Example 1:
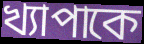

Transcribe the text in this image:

খ্যাপাকে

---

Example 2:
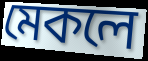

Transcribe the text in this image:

মেকলে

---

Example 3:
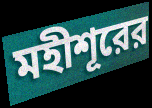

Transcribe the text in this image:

মহীশূরের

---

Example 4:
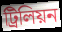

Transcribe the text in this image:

ট্রিলিয়ন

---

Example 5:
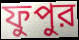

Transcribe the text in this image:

ফুপুর